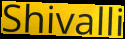
Shivalli